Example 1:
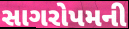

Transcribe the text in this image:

સાગરોપમની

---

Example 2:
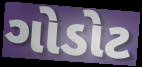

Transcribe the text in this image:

ગોડોટ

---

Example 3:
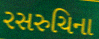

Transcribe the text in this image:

રસરુચિના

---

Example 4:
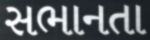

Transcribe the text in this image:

સભાનતા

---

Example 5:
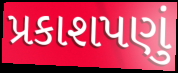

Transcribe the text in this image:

પ્રકાશપણું